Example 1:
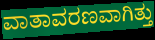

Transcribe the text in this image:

ವಾತಾವರಣವಾಗಿತ್ತು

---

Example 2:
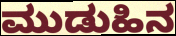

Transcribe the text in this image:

ಮುಡುಹಿನ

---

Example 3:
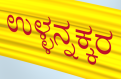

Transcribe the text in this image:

ಉಳ್ಳನ್ನಕ್ಕರ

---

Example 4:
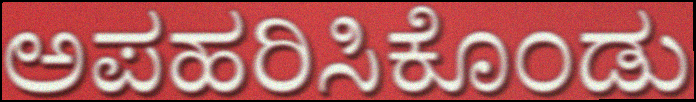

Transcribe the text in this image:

ಅಪಹರಿಸಿಕೊಂಡು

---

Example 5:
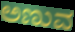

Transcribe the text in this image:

ಅಣುವ